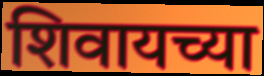
शिवायच्या